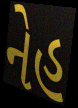
નેહ